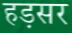
हड़सर